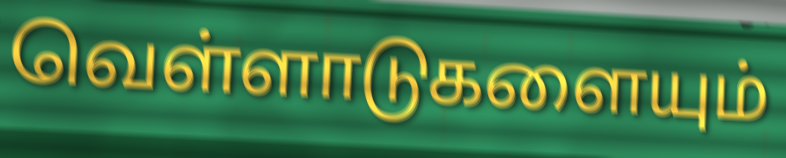
வெள்ளாடுகளையும்